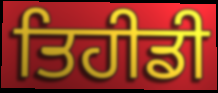
ਤਿਹੀਡੀ